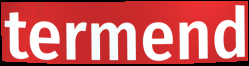
termend